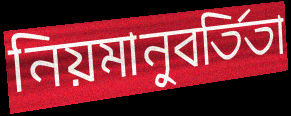
নিয়মানুবর্তিতা